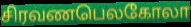
சிரவணபெலகோலா